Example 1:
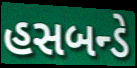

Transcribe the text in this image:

હસબન્ડે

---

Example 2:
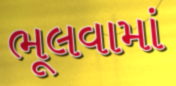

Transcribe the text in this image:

ભૂલવામાં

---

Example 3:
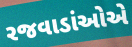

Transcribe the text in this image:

રજવાડાંઓએ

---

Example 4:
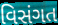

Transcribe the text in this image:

વિસંગત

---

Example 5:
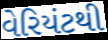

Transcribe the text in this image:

વેરિયંટથી